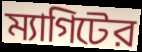
ম্যাগিটের